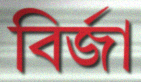
বির্জা